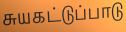
சுயகட்டுப்பாடு